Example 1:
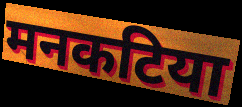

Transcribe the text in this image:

मनकटिया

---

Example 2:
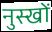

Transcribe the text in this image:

नुस्‍खों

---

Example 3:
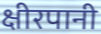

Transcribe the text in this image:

क्षीरपानी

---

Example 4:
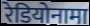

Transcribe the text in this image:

रेडियोनामा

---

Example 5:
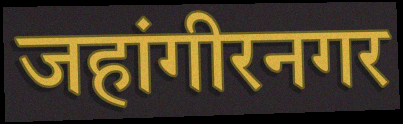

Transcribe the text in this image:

जहांगीरनगर